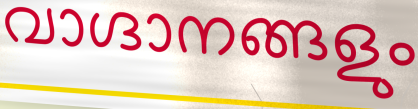
വാഗ്ദാനങ്ങളും